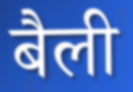
बैली